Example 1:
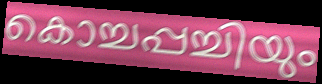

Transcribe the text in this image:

കൊച്ചപ്പച്ചിയും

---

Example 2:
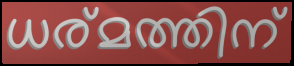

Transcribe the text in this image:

ധര്മത്തിന്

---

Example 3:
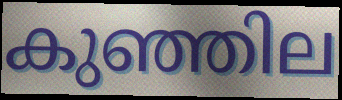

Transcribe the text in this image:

കുഞ്ഞില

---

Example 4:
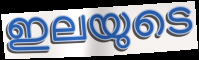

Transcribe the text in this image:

ഇലയുടെ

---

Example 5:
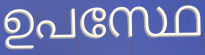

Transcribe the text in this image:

ഉപസ്ഥേ